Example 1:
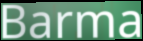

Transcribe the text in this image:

Barma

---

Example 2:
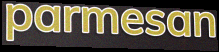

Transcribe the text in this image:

parmesan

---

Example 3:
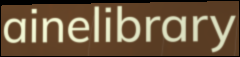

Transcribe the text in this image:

ainelibrary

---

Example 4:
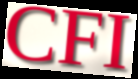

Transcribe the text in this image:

CFI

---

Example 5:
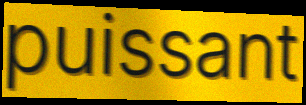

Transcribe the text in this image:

puissant